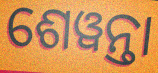
ଶେୱନ୍ତା